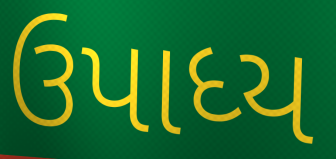
ઉપાધ્ય